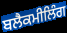
ਬਲੈਕਮੀਲਿੰਗ